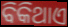
ବିକିଥାଏ